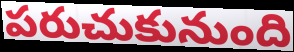
పరుచుకునుంది